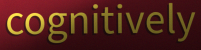
cognitively